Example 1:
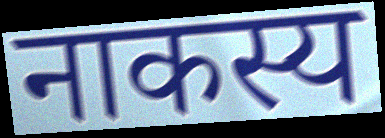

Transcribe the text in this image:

नाकस्य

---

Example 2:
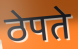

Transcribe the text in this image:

ठेपते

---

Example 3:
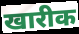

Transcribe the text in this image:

खारीक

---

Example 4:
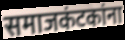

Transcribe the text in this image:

समाजकंटकांना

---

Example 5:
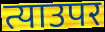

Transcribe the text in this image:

त्याउपर